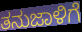
ತನುಜಾಳಿಗೆ